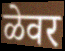
ळेवर